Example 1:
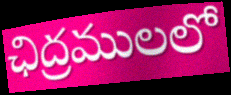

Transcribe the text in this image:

ఛిద్రములలో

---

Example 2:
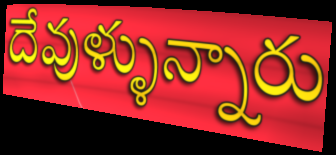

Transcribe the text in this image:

దేవుళ్ళున్నారు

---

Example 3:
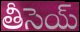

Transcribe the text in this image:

తీసెయ్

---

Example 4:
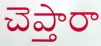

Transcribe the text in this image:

చెప్తారా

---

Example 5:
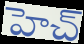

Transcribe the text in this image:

హెచ్